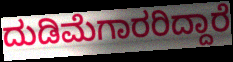
ದುಡಿಮೆಗಾರರಿದ್ದಾರೆ